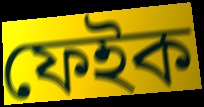
ফেইক